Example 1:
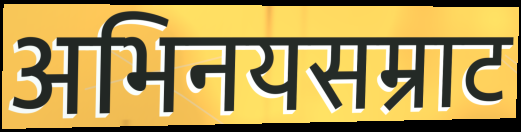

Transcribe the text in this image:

अभिनयसम्राट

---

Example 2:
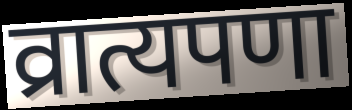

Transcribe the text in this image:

व्रात्यपणा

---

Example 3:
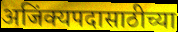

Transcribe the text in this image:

अजिंक्यपदासाठीच्या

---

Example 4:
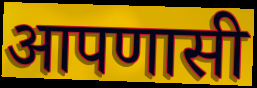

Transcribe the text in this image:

आपणासी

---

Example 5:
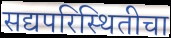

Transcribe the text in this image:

सद्यपरिस्थितीचा